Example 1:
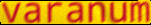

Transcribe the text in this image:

varanum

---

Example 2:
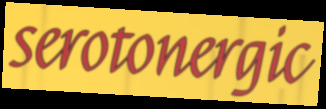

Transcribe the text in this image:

serotonergic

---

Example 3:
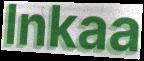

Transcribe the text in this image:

Inkaa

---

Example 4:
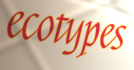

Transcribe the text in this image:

ecotypes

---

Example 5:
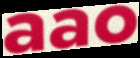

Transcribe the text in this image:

aao